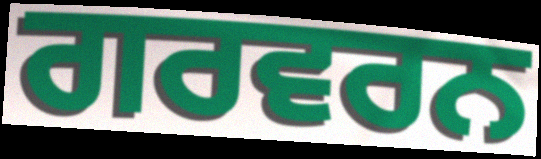
ਗਰਵਰਨ